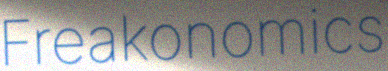
Freakonomics